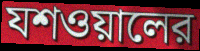
যশওয়ালের